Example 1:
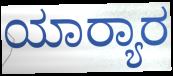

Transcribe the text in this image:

ಯಾರ‍್ಯಾರ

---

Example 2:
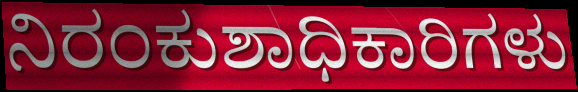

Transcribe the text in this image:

ನಿರಂಕುಶಾಧಿಕಾರಿಗಳು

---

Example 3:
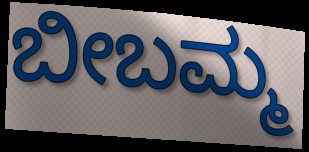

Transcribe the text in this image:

ಬೀಬಮ್ಮ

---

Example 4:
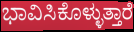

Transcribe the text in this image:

ಭಾವಿಸಿಕೊಳ್ಳುತ್ತಾರೆ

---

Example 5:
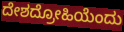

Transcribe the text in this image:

ದೇಶದ್ರೋಹಿಯೆಂದು